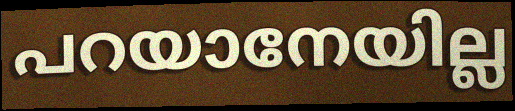
പറയാനേയില്ല